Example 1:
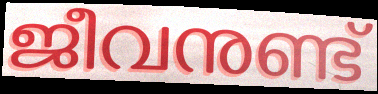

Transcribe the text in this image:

ജീവനുണ്ട്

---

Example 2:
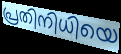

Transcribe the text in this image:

പ്രതിനിധിയെ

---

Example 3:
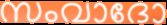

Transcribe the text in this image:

സംവാദോ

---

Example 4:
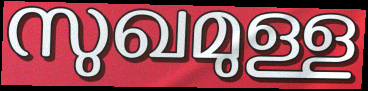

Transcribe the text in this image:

സുഖമുള്ള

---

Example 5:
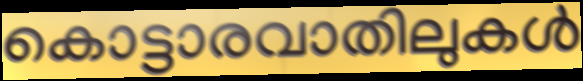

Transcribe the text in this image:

കൊട്ടാരവാതിലുകൾ